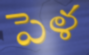
పెళ